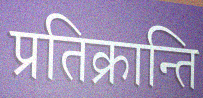
प्रतिक्रान्ति